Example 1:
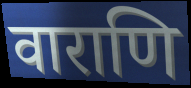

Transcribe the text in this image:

वाराणि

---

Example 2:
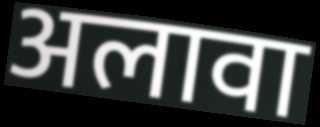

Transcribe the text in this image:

अलावा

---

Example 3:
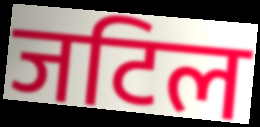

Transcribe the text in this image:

जटिल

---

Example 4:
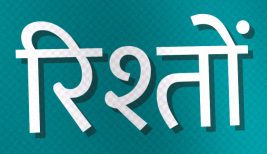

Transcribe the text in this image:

रिश्तों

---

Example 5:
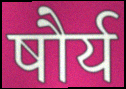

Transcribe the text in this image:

षौर्य